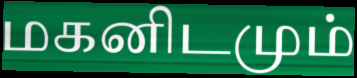
மகனிடமும்